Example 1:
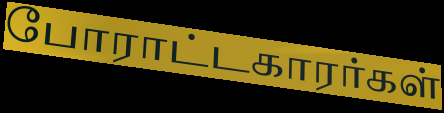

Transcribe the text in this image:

போராட்டகாரர்கள்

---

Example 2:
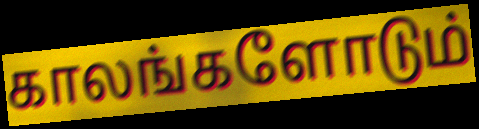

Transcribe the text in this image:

காலங்களோடும்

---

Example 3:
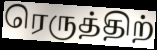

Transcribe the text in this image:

ரெருத்திற்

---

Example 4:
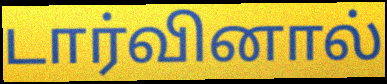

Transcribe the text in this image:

டார்வினால்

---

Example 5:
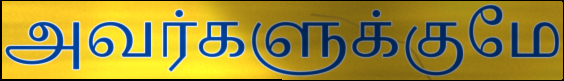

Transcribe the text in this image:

அவர்களுக்குமே